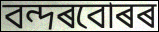
বন্দৰবোৰৰ